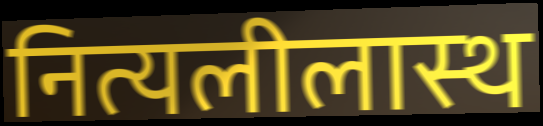
नित्यलीलास्थ